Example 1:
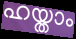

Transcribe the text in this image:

ഹയ്താം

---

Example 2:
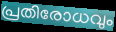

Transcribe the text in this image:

പ്രതിരോധവും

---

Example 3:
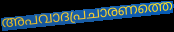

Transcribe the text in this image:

അപവാദപ്രചാരണത്തെ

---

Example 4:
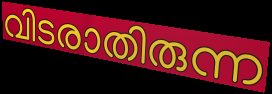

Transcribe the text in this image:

വിടരാതിരുന്ന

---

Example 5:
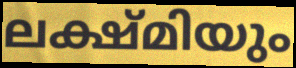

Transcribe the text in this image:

ലക്ഷ്മിയും